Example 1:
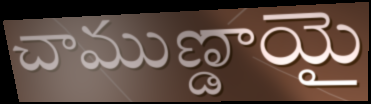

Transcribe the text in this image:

చాముణ్డాయై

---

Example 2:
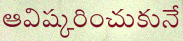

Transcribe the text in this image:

ఆవిష్కరించుకునే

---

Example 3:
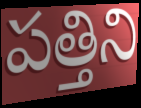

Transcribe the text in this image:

పత్తిని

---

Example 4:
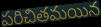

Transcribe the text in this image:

పరిచితమయిన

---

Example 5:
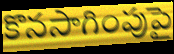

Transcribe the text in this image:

కొనసాగింపుపై